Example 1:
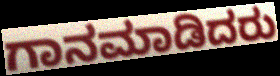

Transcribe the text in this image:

ಗಾನಮಾಡಿದರು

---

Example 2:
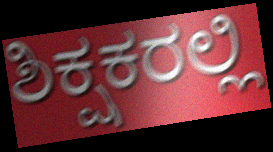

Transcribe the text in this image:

ಶಿಕ್ಷಕರಲ್ಲಿ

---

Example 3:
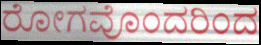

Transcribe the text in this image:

ರೋಗವೊಂದರಿಂದ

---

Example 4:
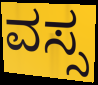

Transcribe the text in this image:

ವಸ್ಸ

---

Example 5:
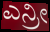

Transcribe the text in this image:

ಎನ್ರೀ